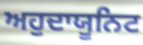
ਅਹੁਦਾਯੂਨਿਟ